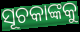
ସୂଚକାଙ୍କକୁ